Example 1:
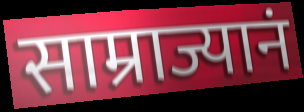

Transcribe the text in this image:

साम्राज्यानं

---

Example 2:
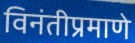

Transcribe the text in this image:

विनंतीप्रमाणे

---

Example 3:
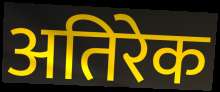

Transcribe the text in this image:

अतिरेक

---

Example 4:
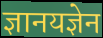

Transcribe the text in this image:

ज्ञानयज्ञेन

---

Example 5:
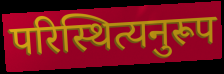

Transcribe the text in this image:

परिस्थित्यनुरूप